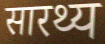
सारथ्य